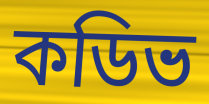
কডিভ